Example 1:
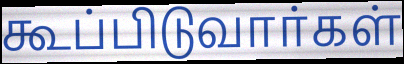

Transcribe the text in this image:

கூப்பிடுவார்கள்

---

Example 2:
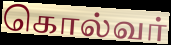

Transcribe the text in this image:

கொல்வர்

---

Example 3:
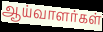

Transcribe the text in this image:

ஆய்வாளர்கள்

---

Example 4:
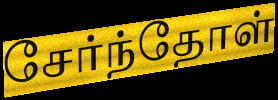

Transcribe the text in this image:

சேர்ந்தோள்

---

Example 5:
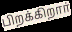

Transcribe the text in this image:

பிறக்கிறார்